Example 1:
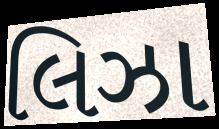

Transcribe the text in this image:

લિઝા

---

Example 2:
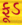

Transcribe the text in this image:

ફૂડ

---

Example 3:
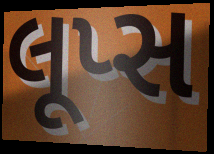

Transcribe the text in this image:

લૂપ્સ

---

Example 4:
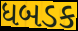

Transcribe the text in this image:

ધબડક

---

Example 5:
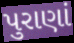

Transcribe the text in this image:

પુરાણાં